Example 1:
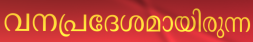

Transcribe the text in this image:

വനപ്രദേശമായിരുന്ന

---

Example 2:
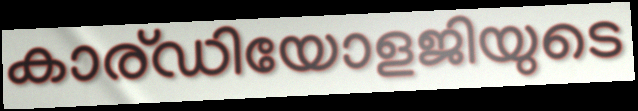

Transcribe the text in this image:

കാര്ഡിയോളജിയുടെ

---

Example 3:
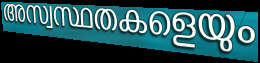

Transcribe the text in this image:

അസ്വസ്ഥതകളെയും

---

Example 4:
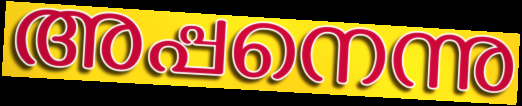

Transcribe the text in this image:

അപ്പനെന്നു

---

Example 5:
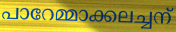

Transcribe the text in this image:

പാറേമ്മാക്കലച്ചന്